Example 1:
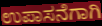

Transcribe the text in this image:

ಉಪಾಸನೆಗಾಗಿ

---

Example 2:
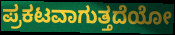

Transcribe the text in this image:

ಪ್ರಕಟವಾಗುತ್ತದೆಯೋ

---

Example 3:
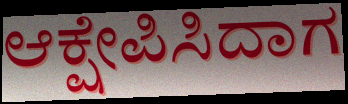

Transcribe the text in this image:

ಆಕ್ಷೇಪಿಸಿದಾಗ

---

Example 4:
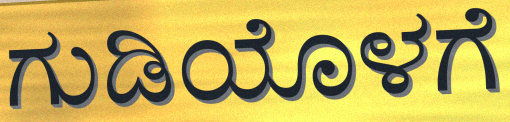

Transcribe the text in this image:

ಗುಡಿಯೊಳಗೆ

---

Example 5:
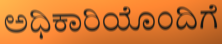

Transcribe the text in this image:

ಅಧಿಕಾರಿಯೊಂದಿಗೆ